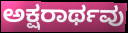
ಅಕ್ಷರಾರ್ಥವು